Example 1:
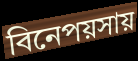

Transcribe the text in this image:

বিনেপয়সায়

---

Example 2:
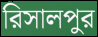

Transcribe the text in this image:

রিসালপুর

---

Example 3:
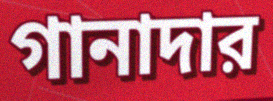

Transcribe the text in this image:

গানাদার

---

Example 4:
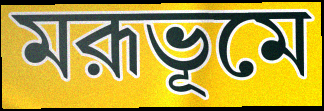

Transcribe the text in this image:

মরূভূমে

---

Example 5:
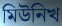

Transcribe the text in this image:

মিউনিখ